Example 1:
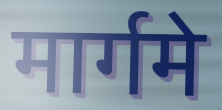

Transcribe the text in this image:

मार्गमे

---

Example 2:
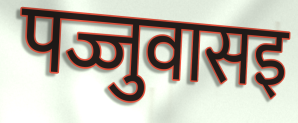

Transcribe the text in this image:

पज्जुवासइ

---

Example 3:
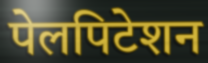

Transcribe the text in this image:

पेलपिटेशन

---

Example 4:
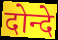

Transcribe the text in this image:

दोन्दे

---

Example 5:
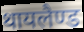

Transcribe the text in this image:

थायलैण्ड